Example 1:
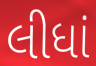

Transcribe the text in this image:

લીધાં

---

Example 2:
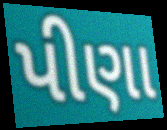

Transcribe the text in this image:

પીણા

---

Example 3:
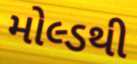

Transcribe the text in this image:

મોલ્ડથી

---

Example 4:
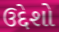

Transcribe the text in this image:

ઉદ્દેશો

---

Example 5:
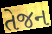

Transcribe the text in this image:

તેજન